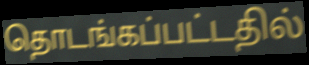
தொடங்கப்பட்டதில்